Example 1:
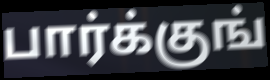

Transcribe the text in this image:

பார்க்குங்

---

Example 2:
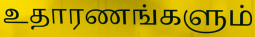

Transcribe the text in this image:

உதாரணங்களும்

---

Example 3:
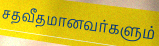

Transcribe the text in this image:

சதவீதமானவர்களும்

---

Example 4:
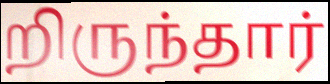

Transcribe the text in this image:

றிருந்தார்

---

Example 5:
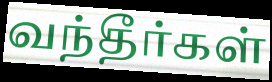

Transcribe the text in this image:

வந்தீர்கள்